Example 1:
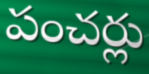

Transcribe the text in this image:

పంచర్లు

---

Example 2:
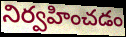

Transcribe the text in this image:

నిర్వహించడం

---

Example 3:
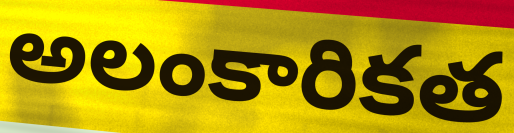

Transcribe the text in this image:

అలంకారికత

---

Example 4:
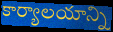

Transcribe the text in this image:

కార్యాలయాన్ని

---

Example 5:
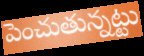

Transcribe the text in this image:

పెంచుతున్నట్టు